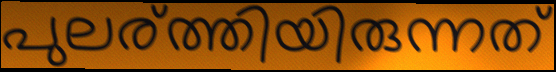
പുലര്ത്തിയിരുന്നത്